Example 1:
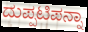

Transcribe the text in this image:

ದುಪ್ಪಟಿಪನ್ನಾ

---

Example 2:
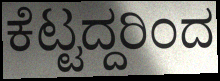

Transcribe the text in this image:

ಕೆಟ್ಟದ್ದರಿಂದ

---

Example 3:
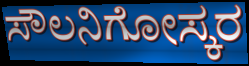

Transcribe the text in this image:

ಸೌಲನಿಗೋಸ್ಕರ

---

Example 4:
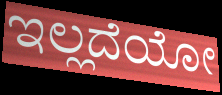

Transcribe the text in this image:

ಇಲ್ಲದೆಯೋ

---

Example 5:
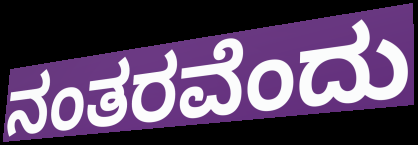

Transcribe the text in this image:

ನಂತರವೆಂದು